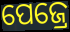
ପେଜ୍ରେ